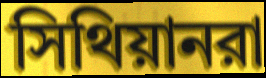
সিথিয়ানরা